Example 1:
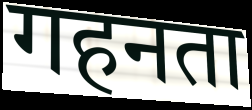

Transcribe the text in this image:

गहनता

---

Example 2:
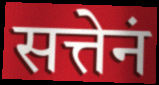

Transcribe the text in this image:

सत्तेनं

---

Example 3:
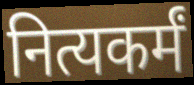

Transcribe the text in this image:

नित्यकर्मं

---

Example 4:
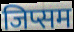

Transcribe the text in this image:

जिप्सम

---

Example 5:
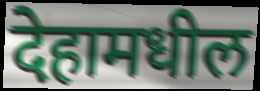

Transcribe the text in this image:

देहामधील